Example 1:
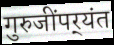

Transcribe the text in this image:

गुरुजींपर्यंत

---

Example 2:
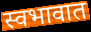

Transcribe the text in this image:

स्वभावात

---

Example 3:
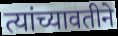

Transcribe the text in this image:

त्यांच्यावतीने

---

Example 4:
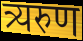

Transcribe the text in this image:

त्र्यरुण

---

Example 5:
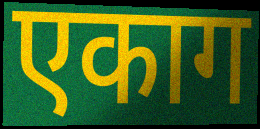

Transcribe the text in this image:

एकाग